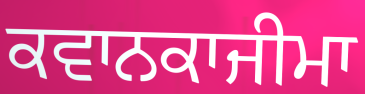
ਕਵਾਨਕਾਜੀਮਾ